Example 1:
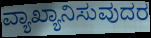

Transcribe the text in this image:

ವ್ಯಾಖ್ಯಾನಿಸುವುದರ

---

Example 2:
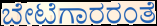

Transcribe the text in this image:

ಬೇಟೆಗಾರರಂತೆ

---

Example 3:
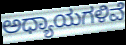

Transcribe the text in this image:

ಅಧ್ಯಾಯಗಳಿವೆ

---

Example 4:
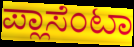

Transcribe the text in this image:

ಪ್ಲಾಸೆಂಟಾ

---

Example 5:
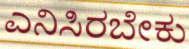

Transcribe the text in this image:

ಎನಿಸಿರಬೇಕು